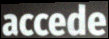
accede